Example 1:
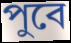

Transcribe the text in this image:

পুবে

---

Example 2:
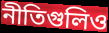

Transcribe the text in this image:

নীতিগুলিও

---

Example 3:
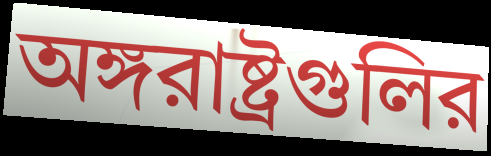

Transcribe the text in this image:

অঙ্গরাষ্ট্রগুলির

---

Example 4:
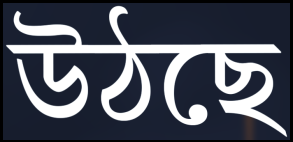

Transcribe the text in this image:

উঠছে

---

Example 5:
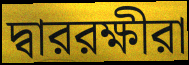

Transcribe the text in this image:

দ্বাররক্ষীরা